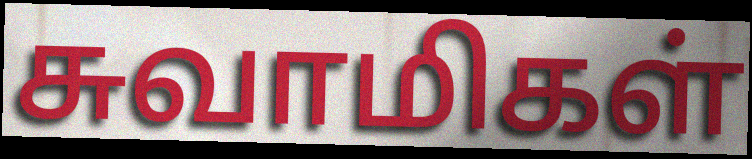
சுவாமிகள்